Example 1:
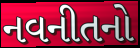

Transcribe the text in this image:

નવનીતનો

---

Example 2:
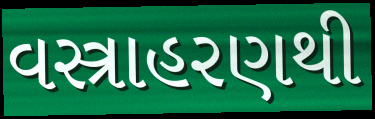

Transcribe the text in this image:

વસ્ત્રાહરણથી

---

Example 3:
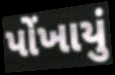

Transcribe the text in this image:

પોંખાયું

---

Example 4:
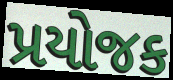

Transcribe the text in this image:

પ્રયોજક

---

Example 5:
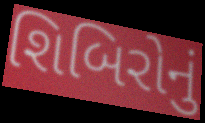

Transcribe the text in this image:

શિબિરોનું